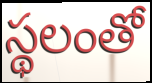
స్థలంతో